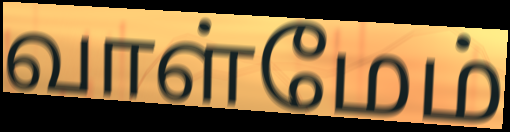
வாள்மேம்